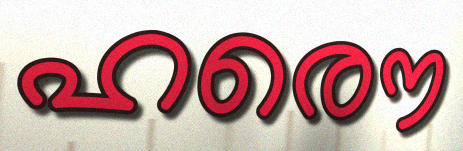
ഹരൌ